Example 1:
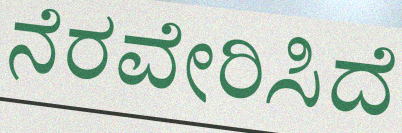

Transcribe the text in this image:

ನೆರವೇರಿಸಿದೆ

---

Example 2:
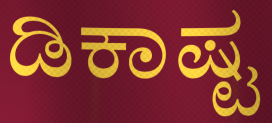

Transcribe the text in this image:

ಡಿಕಾಷ್ಟ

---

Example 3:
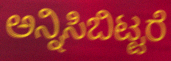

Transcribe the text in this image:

ಅನ್ನಿಸಿಬಿಟ್ಟರೆ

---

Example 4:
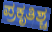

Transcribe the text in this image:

ಪ್ರಕೃತಿಶ್ಚ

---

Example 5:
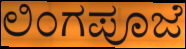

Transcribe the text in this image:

ಲಿಂಗಪೂಜೆ